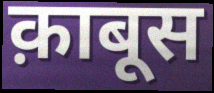
क़ाबूस